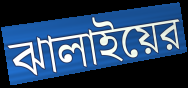
ঝালাইয়ের